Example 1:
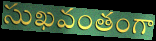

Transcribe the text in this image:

సుఖవంతంగా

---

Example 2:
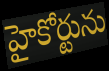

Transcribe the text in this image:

హైకోర్టును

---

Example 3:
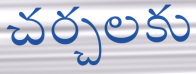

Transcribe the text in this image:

చర్చలకు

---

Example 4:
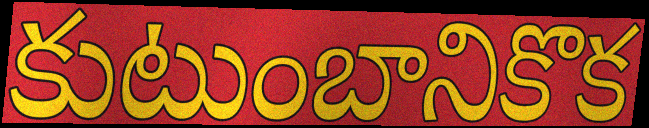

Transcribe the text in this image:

కుటుంబానికొక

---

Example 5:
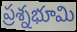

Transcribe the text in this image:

ప్రశ్నభూమి